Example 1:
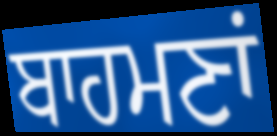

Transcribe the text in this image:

ਬਾਹਮਣਾਂ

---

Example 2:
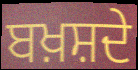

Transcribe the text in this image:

ਬਖ਼ਸ਼ਦੇ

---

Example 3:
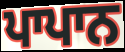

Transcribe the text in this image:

ਪਾਪਾਨ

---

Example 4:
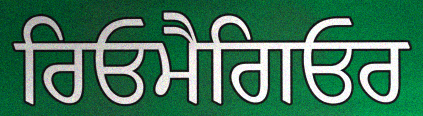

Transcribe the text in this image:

ਰਿਓਮੈਗਿਓਰ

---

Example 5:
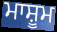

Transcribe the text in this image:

ਮਾਸ਼ੂਮ